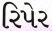
રિપેર